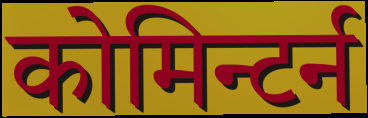
कोमिन्टर्न